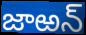
జాఱన్